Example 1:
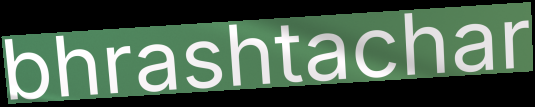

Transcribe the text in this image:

bhrashtachar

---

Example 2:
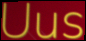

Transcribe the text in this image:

Uus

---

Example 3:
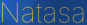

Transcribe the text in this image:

Natasa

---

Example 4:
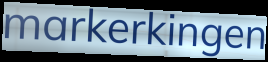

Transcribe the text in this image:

markerkingen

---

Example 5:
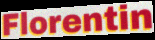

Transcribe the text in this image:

Florentin